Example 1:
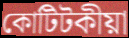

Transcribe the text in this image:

কোটিটকীয়া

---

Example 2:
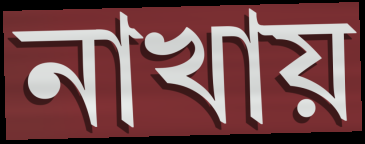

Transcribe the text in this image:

নাখায়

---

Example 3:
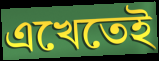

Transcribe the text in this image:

এখেতেই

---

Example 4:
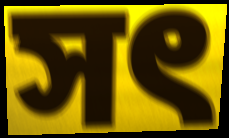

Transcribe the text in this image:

সৎ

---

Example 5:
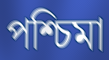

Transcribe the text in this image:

পশ্চিমা